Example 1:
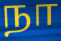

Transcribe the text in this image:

நா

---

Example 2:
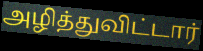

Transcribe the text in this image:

அழித்துவிட்டார்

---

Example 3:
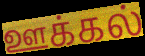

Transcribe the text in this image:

ஊக்கல்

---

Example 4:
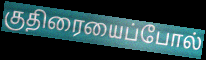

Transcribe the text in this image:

குதிரையைப்போல்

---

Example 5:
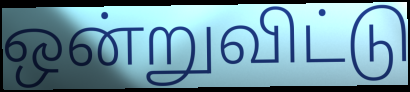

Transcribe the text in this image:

ஒன்றுவிட்டு